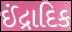
ઈંદ્રાદિક